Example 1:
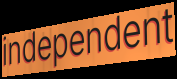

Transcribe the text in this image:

independent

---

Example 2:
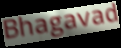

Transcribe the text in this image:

Bhagavad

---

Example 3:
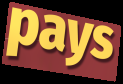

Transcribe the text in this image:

pays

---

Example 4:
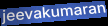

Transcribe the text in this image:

jeevakumaran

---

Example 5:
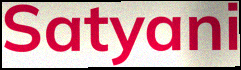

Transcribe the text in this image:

Satyani